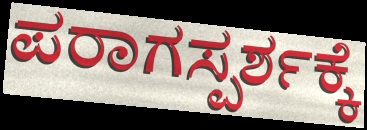
ಪರಾಗಸ್ಪರ್ಶಕ್ಕೆ